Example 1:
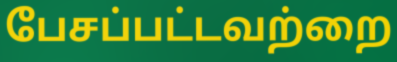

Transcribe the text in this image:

பேசப்பட்டவற்றை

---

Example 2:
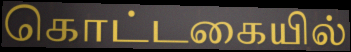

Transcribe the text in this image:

கொட்டகையில்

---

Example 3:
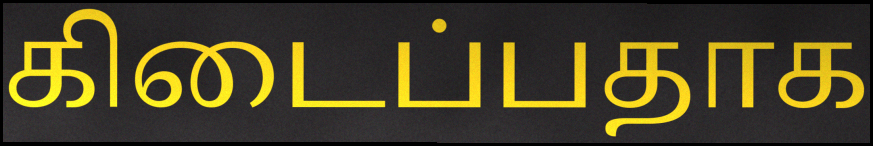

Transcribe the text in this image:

கிடைப்பதாக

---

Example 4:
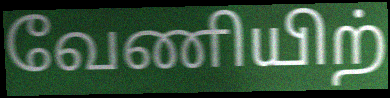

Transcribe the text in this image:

வேணியிற்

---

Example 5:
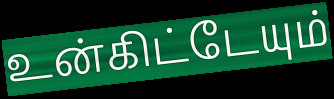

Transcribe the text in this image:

உன்கிட்டேயும்